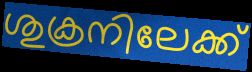
ശുക്രനിലേക്ക്